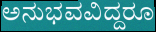
ಅನುಭವವಿದ್ದರೂ